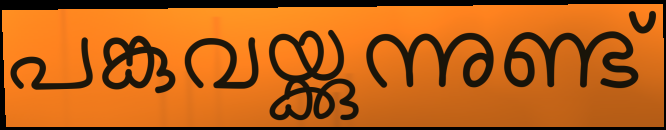
പങ്കുവയ്ക്കുന്നുണ്ട്